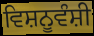
ਵਿਸ਼ਨੂਵੰਸ਼ੀ